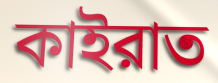
কাইরাত